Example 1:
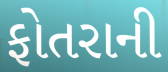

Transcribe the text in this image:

ફોતરાની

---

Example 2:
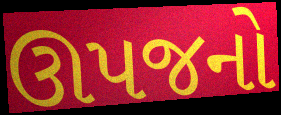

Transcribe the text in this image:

ઊપજનો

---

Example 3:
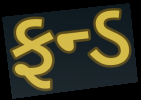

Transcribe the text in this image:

ફન્ડ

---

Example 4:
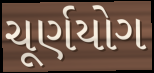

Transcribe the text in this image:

ચૂર્ણયોગ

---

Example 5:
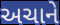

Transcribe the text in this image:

અચાને